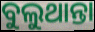
ବୁଲୁଥାନ୍ତା